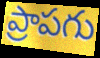
ప్రాపగు